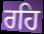
ਰਹਿ